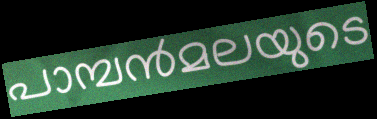
പാമ്പൻമലയുടെ